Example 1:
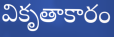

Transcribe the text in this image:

వికృతాకారం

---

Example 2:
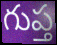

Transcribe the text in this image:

గుప్త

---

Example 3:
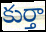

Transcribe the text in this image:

కుర్తా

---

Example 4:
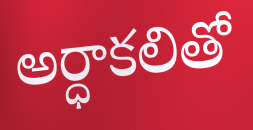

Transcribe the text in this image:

అర్ధాకలితో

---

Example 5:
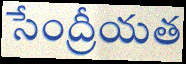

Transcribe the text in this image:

సేంద్రీయత